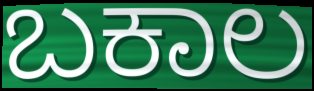
ಬಕಾಲ